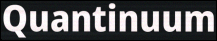
Quantinuum